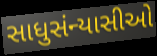
સાધુસંન્યાસીઓ